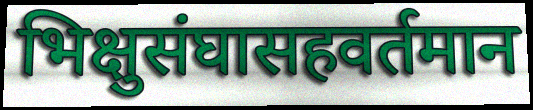
भिक्षुसंघासहवर्तमान